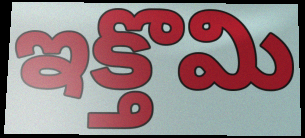
ఇక్తొమి